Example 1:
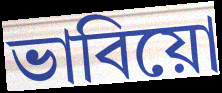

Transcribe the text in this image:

ভাবিয়ো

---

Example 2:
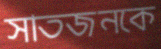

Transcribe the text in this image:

সাতজনকে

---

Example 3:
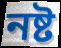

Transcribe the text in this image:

নষ্ট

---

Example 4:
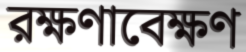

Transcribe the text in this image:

রক্ষণাবেক্ষণ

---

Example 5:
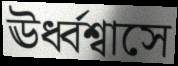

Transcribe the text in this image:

ঊর্ধ্বশ্বাসে